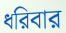
ধরিবার